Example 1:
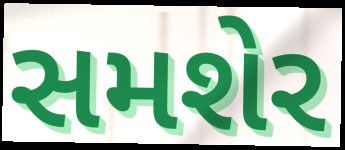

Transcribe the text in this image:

સમશેર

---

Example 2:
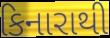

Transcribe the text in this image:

કિનારાથી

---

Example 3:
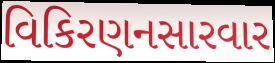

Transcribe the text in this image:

વિકિરણનસારવાર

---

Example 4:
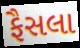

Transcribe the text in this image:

ફૈસલા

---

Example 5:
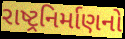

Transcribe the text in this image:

રાષ્ટ્રનિર્માણનો